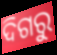
ଦିଗରୁ